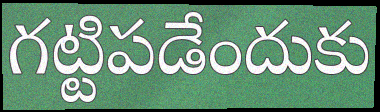
గట్టిపడేందుకు